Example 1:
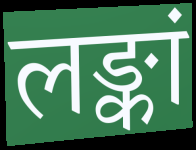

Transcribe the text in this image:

लङ्कां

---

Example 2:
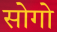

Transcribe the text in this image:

सोगो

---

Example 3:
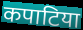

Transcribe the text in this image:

कपाटिया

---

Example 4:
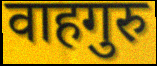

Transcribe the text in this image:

वाहगुरु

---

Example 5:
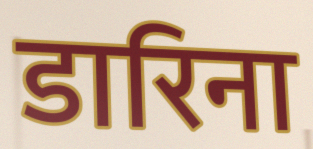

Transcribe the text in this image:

डारिना